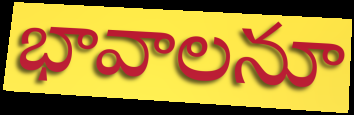
భావాలనూ